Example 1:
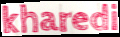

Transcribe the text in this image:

kharedi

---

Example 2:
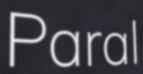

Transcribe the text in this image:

Paral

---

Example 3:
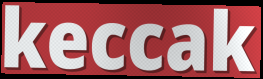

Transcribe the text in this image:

keccak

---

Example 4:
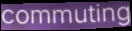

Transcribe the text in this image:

commuting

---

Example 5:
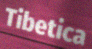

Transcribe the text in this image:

Tibetica